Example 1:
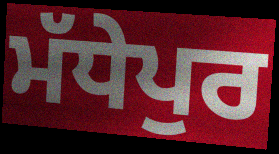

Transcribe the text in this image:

ਮੱਧੇਪੁਰ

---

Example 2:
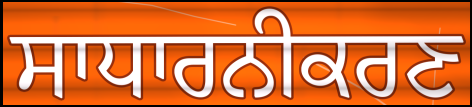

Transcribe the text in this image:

ਸਾਧਾਰਨੀਕਰਣ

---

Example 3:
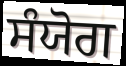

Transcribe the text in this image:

ਸੰਯੋਗ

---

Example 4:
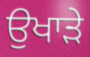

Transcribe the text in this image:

ਉਖਾੜੇ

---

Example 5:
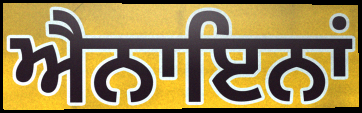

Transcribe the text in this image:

ਐਨਾਇਨਾਂ